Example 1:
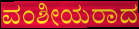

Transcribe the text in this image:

ವಂಶೀಯರಾದ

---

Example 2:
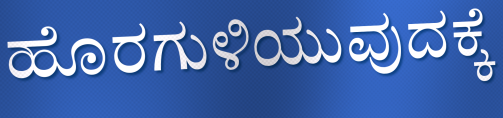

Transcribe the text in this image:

ಹೊರಗುಳಿಯುವುದಕ್ಕೆ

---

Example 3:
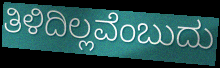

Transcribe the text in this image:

ತಿಳಿದಿಲ್ಲವೆಂಬುದು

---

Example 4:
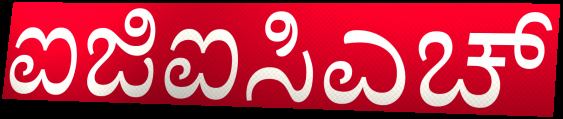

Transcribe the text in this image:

ಐಜಿಐಸಿಎಚ್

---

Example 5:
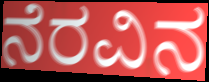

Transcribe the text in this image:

ನೆರವಿನ